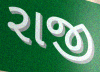
રાજી